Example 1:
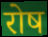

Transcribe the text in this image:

रोष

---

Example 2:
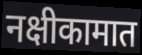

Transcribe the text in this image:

नक्षीकामात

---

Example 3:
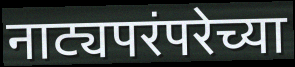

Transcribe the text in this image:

नाट्यपरंपरेच्या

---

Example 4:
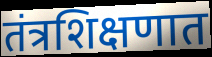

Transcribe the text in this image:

तंत्रशिक्षणात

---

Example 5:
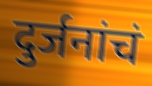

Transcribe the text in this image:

दुर्जनांचं